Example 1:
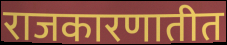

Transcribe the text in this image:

राजकारणातीत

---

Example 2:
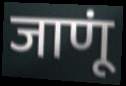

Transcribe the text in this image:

जाणूं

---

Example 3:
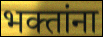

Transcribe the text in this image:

भक्तांना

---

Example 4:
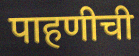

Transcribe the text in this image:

पाहणीची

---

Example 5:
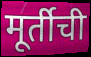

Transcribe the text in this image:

मूर्तीची